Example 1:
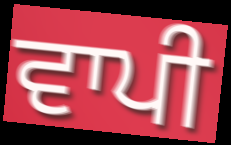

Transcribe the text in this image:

ਵਾਪੀ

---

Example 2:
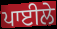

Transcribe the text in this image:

ਪਾਈਲੇ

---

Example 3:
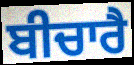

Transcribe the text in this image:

ਬੀਚਾਰੈ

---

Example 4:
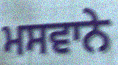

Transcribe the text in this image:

ਮਸਵਾਨੇ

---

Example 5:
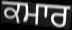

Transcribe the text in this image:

ਕਮਾਰ